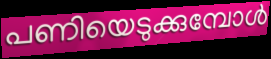
പണിയെടുക്കുമ്പോൾ